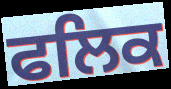
ਫਲਿਕ